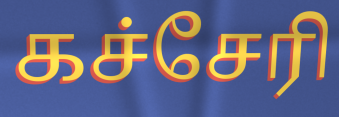
கச்சேரி